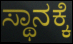
ಸ್ಥಾನಕ್ಕೆ